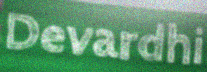
Devardhi